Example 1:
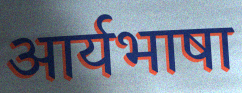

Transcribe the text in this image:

आर्यभाषा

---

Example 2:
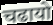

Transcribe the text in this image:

चढायो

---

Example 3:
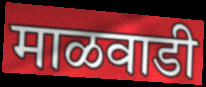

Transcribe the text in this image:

माळवाडी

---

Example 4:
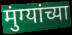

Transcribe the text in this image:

मुंग्यांच्या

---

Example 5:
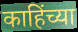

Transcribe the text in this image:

काहिंच्या